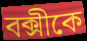
বক্সীকে